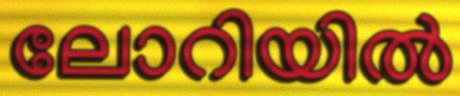
ലോറിയിൽ